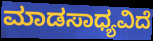
ಮಾಡಸಾಧ್ಯವಿದೆ